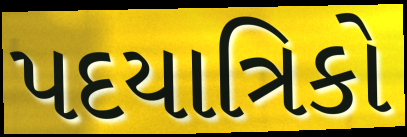
પદયાત્રિકો